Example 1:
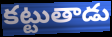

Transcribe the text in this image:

కట్టుతాడు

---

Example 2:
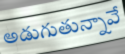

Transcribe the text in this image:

అడుగుతున్నావే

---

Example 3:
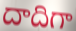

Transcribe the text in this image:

దాదిగా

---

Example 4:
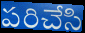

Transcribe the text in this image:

పరిచేసి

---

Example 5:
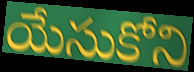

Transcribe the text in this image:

యేసుకోని